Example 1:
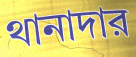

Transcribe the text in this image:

থানাদার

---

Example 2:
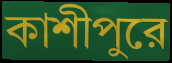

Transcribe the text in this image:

কাশীপুরে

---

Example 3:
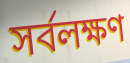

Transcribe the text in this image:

সর্বলক্ষণ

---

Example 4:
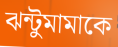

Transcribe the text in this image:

ঝন্টুমামাকে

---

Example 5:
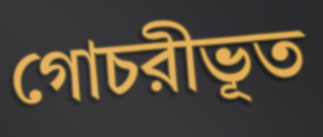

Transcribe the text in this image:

গোচরীভূত